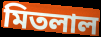
মিতলাল